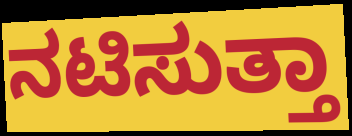
ನಟಿಸುತ್ತಾ